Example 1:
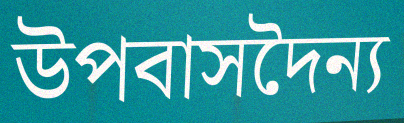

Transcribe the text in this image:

উপবাসদৈন্য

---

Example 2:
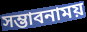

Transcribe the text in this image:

সম্ভাবনাময়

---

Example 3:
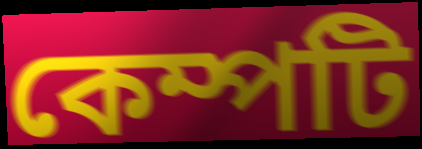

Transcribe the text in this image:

কেম্পটি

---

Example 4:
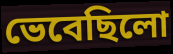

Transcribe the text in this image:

ভেবেছিলো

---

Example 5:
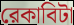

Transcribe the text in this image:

রেকাবিটা